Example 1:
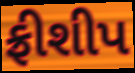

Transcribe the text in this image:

ફ્રીશીપ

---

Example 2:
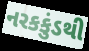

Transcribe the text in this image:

નરકકુંડથી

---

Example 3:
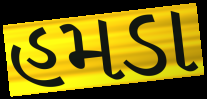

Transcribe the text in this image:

હમડા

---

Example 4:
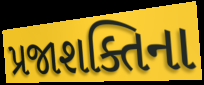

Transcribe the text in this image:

પ્રજાશક્તિના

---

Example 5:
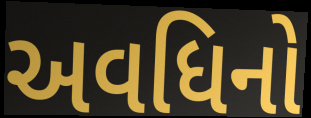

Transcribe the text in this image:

અવધિનો